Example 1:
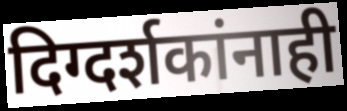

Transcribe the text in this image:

दिग्दर्शकांनाही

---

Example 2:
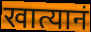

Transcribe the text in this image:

खात्यानं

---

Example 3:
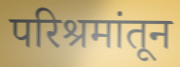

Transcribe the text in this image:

परिश्रमांतून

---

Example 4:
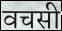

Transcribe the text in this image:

वचसी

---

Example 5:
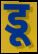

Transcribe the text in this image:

डू